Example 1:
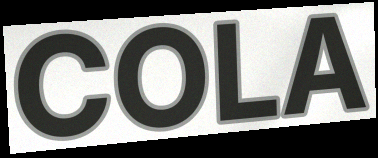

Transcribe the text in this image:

COLA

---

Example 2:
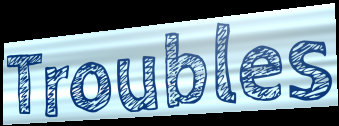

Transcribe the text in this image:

Troubles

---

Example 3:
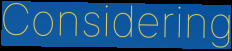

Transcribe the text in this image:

Considering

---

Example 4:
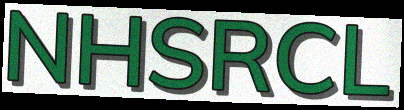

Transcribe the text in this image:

NHSRCL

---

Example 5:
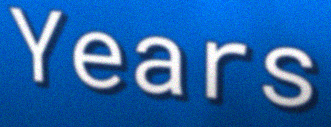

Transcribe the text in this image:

Years